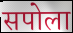
सपोला